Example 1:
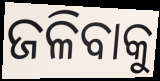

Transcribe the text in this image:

ଜଳିବାକୁ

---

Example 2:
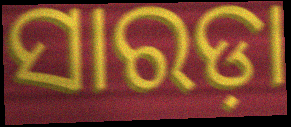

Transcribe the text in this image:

ସାରଡ଼ା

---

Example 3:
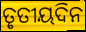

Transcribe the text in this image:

ତୃତୀୟଦିନ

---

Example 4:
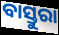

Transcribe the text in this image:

ବାସ୍ତୁରା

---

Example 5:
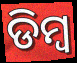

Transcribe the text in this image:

ଡିମ୍ବ